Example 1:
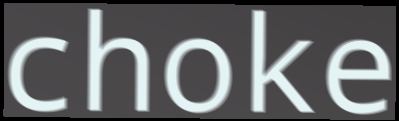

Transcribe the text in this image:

choke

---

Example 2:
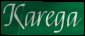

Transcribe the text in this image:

Karega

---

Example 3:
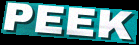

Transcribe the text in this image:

PEEK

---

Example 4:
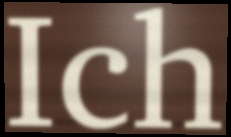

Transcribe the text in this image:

Ich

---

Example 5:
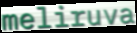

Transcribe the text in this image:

meliruva